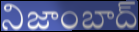
నిజాంబాద్